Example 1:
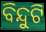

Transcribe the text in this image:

ବିନ୍ଦୁଟି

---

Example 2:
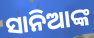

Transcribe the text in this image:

ସାନିଆଙ୍କ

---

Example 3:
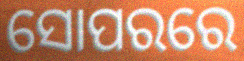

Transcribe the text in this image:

ସୋପରରେ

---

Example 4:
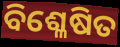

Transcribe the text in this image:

ବିଶ୍ଳେଷିତ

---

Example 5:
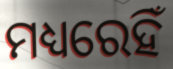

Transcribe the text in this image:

ମଧ୍ୟରେହିଁ